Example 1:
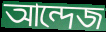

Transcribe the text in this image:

আন্দেজ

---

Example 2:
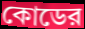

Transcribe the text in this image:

কোডের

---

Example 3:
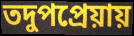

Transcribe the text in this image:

তদুপপ্রেয়ায়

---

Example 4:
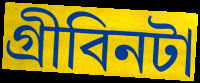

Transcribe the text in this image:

গ্রীবিনটা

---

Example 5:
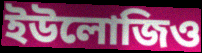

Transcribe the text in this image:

ইউলোজিও